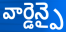
వార్డెన్పై